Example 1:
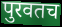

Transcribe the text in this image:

पुरवतच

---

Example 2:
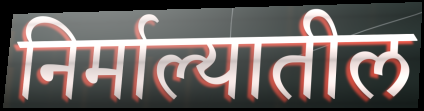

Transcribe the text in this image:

निर्माल्यातील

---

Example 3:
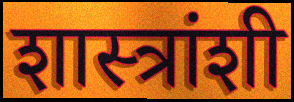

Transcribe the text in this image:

शास्त्रांशी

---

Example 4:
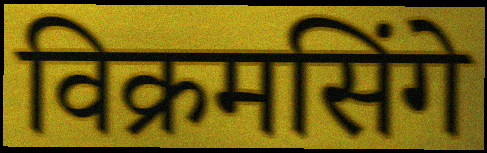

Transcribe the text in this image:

विक्रमसिंगे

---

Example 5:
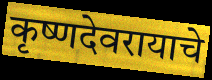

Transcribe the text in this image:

कृष्णदेवरायाचे